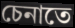
চেনাতে